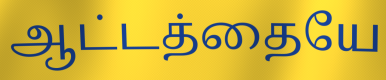
ஆட்டத்தையே